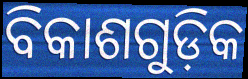
ବିକାଶଗୁଡ଼ିକ